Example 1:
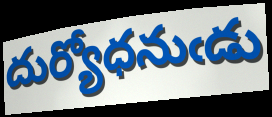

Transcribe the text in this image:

దుర్యోధనుఁడు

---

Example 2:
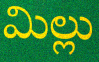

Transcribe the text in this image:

మిల్లు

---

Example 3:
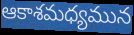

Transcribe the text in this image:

ఆకాశమధ్యమున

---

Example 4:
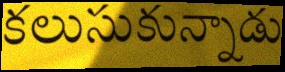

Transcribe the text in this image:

కలుసుకున్నాడు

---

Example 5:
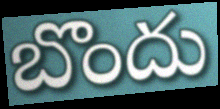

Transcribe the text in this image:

బొందు